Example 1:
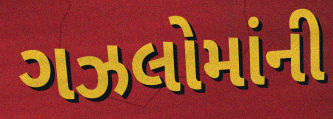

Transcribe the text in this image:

ગઝલોમાંની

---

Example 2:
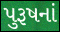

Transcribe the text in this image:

પુરૂષનાં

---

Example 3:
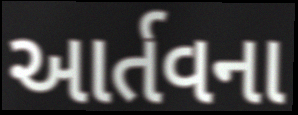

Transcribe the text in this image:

આર્તવના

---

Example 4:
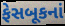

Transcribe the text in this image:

ફેસબૂકનાં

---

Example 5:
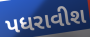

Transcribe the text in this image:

પધરાવીશ